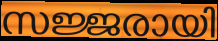
സജ്ജരായി